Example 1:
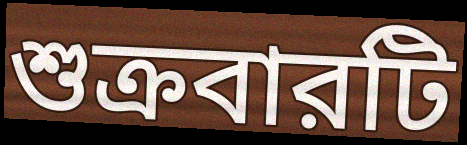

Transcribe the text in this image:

শুক্রবারটি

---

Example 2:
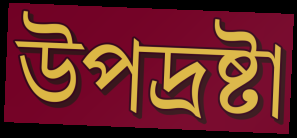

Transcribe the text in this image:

উপদ্রষ্টা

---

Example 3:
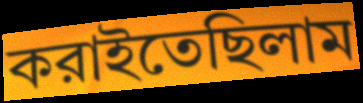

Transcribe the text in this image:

করাইতেছিলাম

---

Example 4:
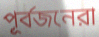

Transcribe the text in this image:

পূর্বজনেরা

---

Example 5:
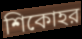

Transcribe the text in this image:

শিকোহর